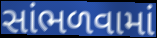
સાંભળવામાં